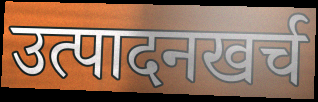
उत्पादनखर्च